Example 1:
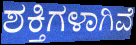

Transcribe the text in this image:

ಶಕ್ತಿಗಳಾಗಿವೆ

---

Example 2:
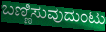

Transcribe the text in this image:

ಬಣ್ಣಿಸುವುದುಂಟು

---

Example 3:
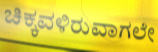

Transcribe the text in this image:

ಚಿಕ್ಕವಳಿರುವಾಗಲೇ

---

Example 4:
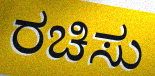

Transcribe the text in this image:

ರಚಿಸು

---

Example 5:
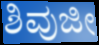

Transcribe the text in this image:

ಶಿವುಜೀ